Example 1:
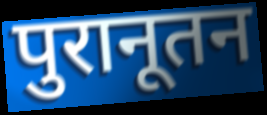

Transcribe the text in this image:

पुरानूतन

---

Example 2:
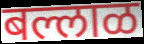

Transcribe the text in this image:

बल्लाळ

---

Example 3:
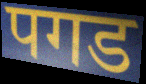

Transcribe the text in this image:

पगड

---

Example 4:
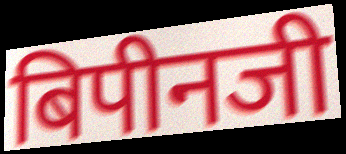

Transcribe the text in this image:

बिपीनजी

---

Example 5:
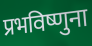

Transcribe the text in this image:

प्रभविष्णुना